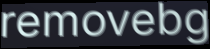
removebg